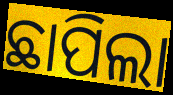
ଛାପିଲା